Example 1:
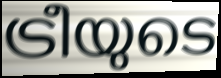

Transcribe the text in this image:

ട്രീയുടെ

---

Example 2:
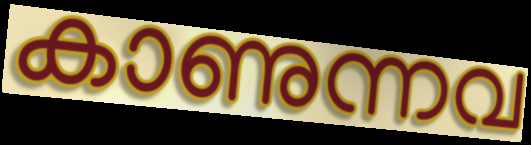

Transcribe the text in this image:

കാണുന്നവ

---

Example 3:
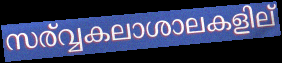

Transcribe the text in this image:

സര്വ്വകലാശാലകളില്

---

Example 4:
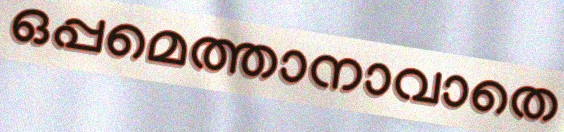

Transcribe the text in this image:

ഒപ്പമെത്താനാവാതെ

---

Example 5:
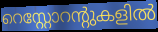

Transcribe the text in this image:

റെസ്റ്റോറന്റുകളിൽ